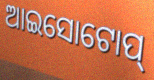
ଆଇସୋଟୋପ୍